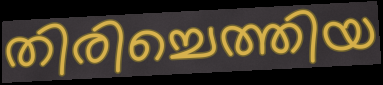
തിരിച്ചെത്തിയ